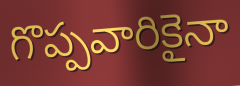
గొప్పవారికైనా